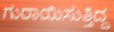
ಗುರಾಯಿಸುತ್ತಿದ್ದ